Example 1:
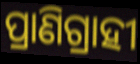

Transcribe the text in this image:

ପ୍ରାଣିଗ୍ରାହୀ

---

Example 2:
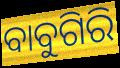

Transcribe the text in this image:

ବାବୁଗିରି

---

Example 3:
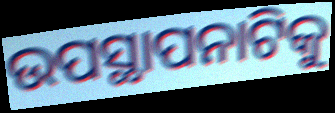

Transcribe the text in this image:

ଉପସ୍ଥାପନାଟିକୁ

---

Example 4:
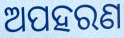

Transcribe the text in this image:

ଅପହରଣ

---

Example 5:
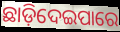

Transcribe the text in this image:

ଛାଡ଼ିଦେଇପାରେ